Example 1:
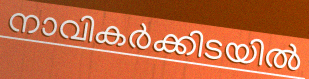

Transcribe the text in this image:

നാവികർക്കിടയിൽ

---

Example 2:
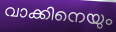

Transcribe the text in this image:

വാക്കിനെയും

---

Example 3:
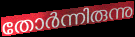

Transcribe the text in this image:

തോർന്നിരുന്നു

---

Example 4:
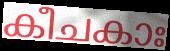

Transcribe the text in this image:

കീചകാഃ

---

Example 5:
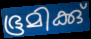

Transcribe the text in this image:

ഭൂമിക്കു്